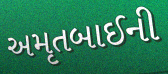
અમૃતબાઈની